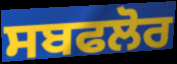
ਸਬਫਲੋਰ